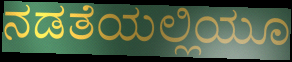
ನಡತೆಯಲ್ಲಿಯೂ